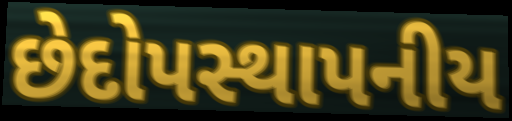
છેદોપસ્થાપનીય